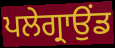
ਪਲੇਗ੍ਰਾਉਂਡ